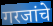
गरजांचे